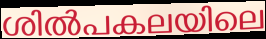
ശിൽപകലയിലെ